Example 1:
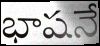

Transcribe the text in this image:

భాషనే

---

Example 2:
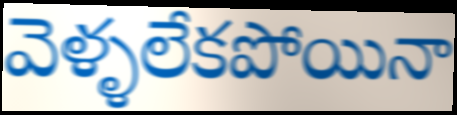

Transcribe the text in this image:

వెళ్ళలేకపోయినా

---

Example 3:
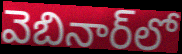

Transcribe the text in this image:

వెబినార్‌లో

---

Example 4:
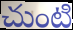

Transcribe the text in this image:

చుంటి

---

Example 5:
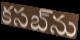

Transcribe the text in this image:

కసబ్‌ను